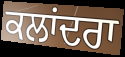
ਕਲਾਂਦਰਾ